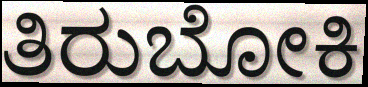
ತಿರುಬೋಕಿ